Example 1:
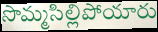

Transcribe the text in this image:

సొమ్మసిల్లిపోయారు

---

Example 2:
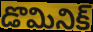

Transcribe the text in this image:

డొమినిక్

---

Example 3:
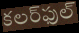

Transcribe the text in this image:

కలర్‌ఫుల్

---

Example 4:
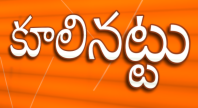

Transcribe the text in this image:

కూలినట్టు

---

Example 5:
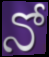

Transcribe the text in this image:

నో